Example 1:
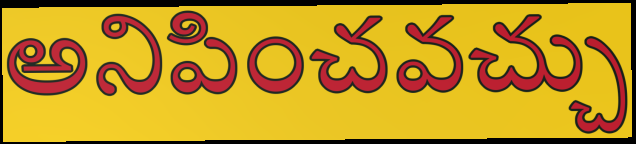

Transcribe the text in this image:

అనిపించవచ్చు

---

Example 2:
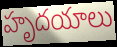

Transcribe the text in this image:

హృదయాలు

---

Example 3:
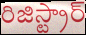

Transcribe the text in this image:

రిజిస్ట్రార్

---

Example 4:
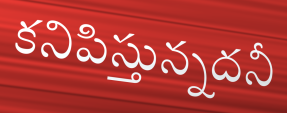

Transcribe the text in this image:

కనిపిస్తున్నదనీ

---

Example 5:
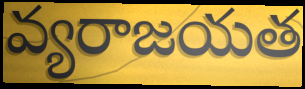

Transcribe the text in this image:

వ్యరాజయత